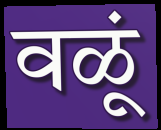
वळूं